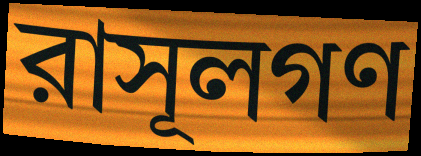
রাসূলগণ